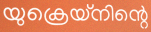
യുക്രെയ്നിന്റെ